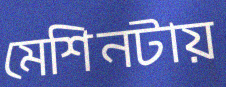
মেশিনটায়